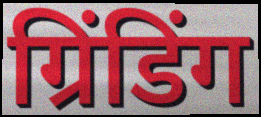
ग्रिंडिंग